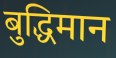
बुद्धिमान